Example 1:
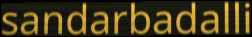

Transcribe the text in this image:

sandarbadalli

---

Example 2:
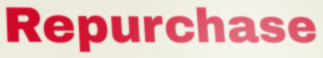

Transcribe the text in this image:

Repurchase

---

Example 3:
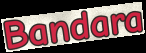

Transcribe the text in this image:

Bandara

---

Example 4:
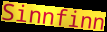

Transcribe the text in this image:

Sinnfinn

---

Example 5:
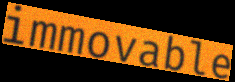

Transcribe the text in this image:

immovable